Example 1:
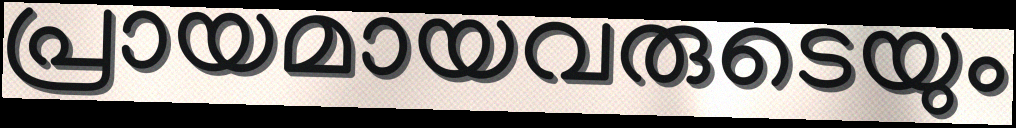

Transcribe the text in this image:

പ്രായമായവരുടെയും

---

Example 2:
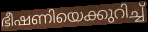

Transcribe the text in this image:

ഭീഷണിയെക്കുറിച്ച്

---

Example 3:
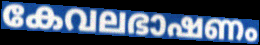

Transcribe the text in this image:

കേവലഭാഷണം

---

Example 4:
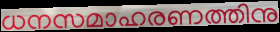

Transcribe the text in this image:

ധനസമാഹരണത്തിനു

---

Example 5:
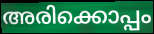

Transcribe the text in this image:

അരിക്കൊപ്പം